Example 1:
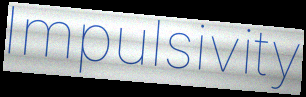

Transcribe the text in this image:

Impulsivity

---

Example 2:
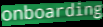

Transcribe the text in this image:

onboarding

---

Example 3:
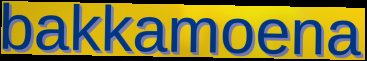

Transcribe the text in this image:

bakkamoena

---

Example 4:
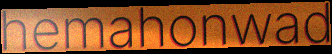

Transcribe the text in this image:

hemahonwad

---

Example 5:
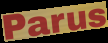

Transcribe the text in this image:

Parus